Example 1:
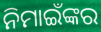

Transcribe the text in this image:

ନିମାଇଁଙ୍କର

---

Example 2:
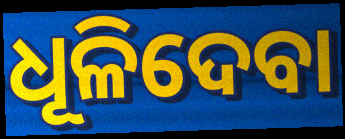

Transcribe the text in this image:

ଧୂଳିଦେବା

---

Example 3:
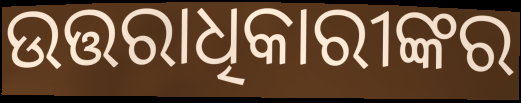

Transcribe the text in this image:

ଉତ୍ତରାଧିକାରୀଙ୍କର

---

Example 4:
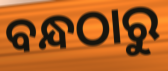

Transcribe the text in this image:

ବନ୍ଧଠାରୁ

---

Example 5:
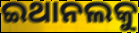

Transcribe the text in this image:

ଇଥାନଲକୁ